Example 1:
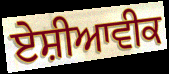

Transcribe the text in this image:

ਏਸ਼ੀਆਵੀਕ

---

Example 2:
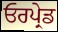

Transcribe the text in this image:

ਓਰਪ੍ਰੇਡ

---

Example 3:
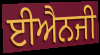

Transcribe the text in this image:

ਈਐਨਜੀ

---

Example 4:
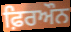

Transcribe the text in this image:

ਫ਼ਿਰਔਨ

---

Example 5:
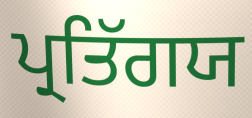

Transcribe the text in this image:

ਪ੍ਰਤਿੱਗਯ